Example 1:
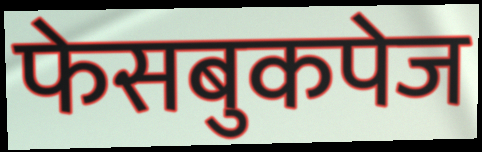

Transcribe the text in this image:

फेसबुकपेज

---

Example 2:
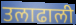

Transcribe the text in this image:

उलाढाली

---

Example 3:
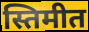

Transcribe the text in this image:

स्तिमीत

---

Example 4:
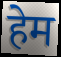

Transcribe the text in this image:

हेम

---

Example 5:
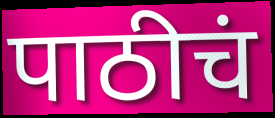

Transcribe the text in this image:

पाठीचं